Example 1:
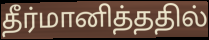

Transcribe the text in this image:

தீர்மானித்ததில்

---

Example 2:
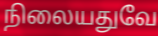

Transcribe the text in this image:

நிலையதுவே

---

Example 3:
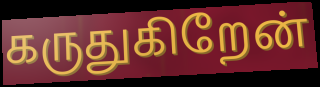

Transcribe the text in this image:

கருதுகிறேன்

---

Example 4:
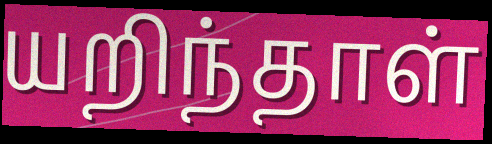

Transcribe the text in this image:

யறிந்தாள்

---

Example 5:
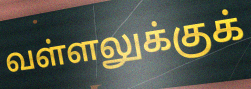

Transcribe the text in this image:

வள்ளலுக்குக்